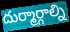
దుర్మార్గాల్ని